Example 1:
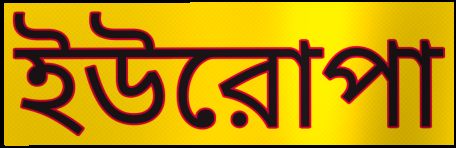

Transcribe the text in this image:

ইউরোপা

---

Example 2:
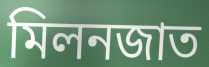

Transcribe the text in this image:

মিলনজাত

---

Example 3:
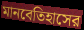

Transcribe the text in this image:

মানবেতিহাসের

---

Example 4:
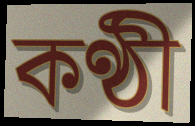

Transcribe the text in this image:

কণ্ঠী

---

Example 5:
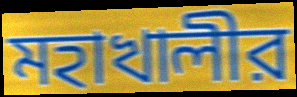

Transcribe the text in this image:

মহাখালীর